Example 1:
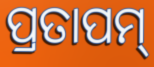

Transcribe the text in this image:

ପ୍ରତାପମ୍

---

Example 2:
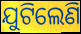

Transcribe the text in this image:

ଯୁଟିଲେଣି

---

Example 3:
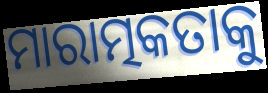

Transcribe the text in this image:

ମାରାତ୍ମକତାକୁ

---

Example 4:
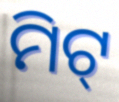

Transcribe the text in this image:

ମିଟ୍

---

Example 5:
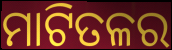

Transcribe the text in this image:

ମାଟିତଳର